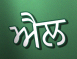
ਐਲ